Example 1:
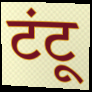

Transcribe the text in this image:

टंटू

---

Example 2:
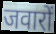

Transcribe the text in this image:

जवारों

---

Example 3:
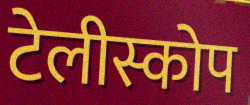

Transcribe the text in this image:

टेलीस्‍कोप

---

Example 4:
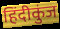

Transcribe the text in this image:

हिंदीकुंज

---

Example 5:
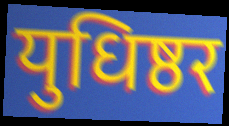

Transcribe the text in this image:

युधिष्ठर